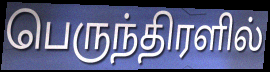
பெருந்திரளில்